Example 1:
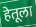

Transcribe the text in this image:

हेतूला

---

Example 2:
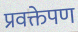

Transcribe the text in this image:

प्रवक्तेपण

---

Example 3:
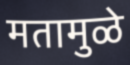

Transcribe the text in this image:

मतामुळे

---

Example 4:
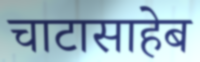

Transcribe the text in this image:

चाटासाहेब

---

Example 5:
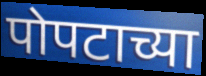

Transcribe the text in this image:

पोपटाच्या